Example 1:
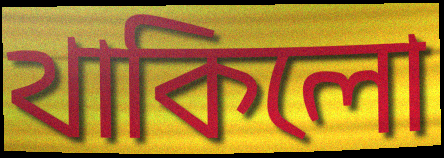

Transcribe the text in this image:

থাকিলো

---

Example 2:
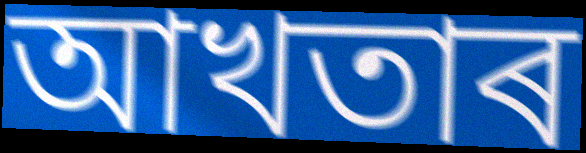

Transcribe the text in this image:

আখতাৰ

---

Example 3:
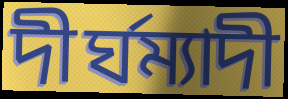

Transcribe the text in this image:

দীৰ্ঘম্যাদী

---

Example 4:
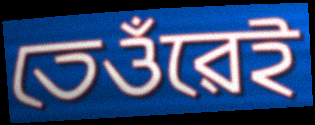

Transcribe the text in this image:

তেওঁৱেই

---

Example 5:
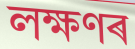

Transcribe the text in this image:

লক্ষণৰ